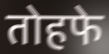
तोहफे